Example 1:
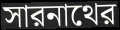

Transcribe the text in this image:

সারনাথের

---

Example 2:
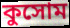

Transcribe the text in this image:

কুসোম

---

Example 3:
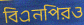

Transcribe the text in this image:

বিএনপিরও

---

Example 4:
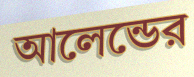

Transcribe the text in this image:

আলেন্ডের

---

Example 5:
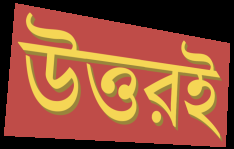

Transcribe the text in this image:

উত্তরই